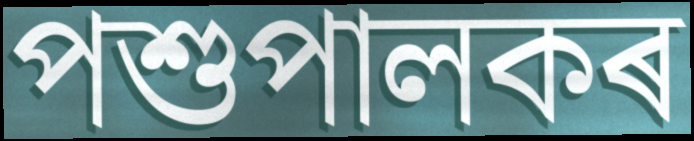
পশুপালকৰ